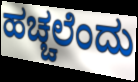
ಹಚ್ಚಲೆಂದು